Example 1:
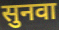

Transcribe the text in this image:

सुनवा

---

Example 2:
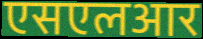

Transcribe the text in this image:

एसएलआर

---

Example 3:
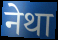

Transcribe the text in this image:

नेथा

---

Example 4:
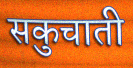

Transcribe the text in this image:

सकुचाती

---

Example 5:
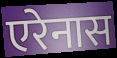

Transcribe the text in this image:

एरेनास